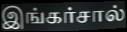
இங்கர்சால்